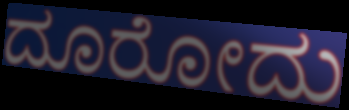
ದೂರೋದು